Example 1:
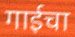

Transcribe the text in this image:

गाईचा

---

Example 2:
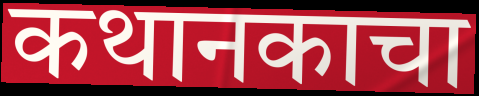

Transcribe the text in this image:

कथानकाचा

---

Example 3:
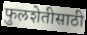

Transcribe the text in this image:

फुलशेतीसाठी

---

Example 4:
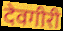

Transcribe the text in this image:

देवगीरी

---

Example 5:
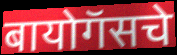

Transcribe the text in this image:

बायोगॅसचे